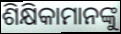
ଶିକ୍ଷିକାମାନଙ୍କୁ